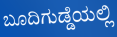
ಬೂದಿಗುಡ್ಡೆಯಲ್ಲಿ